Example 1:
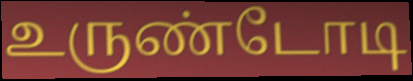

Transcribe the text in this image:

உருண்டோடி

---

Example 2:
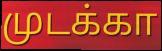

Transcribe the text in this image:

முடக்கா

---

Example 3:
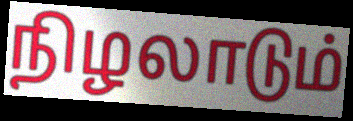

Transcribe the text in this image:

நிழலாடும்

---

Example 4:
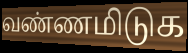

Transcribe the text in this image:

வண்ணமிடுக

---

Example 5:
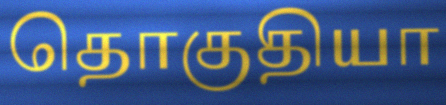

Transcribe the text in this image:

தொகுதியா